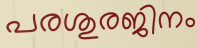
പരശുരജിനം